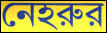
নেহরুর